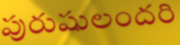
పురుషులందరి